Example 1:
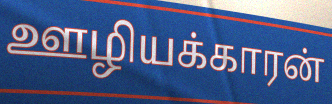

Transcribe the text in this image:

ஊழியக்காரன்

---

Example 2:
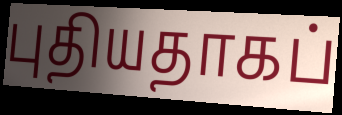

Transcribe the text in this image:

புதியதாகப்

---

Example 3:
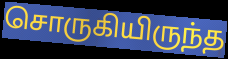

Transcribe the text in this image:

சொருகியிருந்த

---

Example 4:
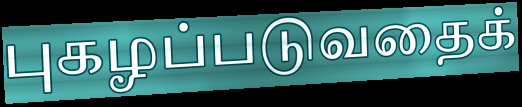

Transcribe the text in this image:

புகழப்படுவதைக்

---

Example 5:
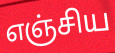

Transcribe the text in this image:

எஞ்சிய